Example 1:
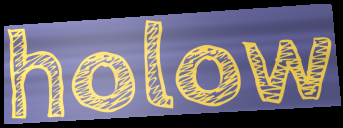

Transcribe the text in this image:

holow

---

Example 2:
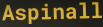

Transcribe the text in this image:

Aspinall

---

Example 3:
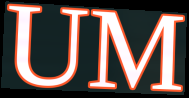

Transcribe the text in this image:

UM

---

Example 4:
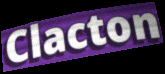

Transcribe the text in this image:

Clacton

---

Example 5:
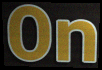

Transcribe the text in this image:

On